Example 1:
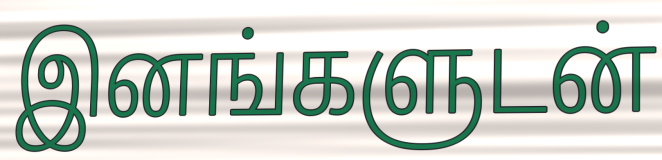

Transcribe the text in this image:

இனங்களுடன்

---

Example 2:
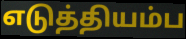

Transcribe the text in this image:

எடுத்தியம்ப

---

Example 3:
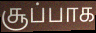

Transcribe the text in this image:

சூப்பாக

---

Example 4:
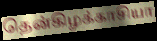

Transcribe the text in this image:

தென்கிழக்காசியா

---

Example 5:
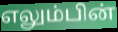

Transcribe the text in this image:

எலும்பின்